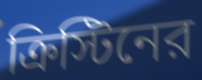
ক্রিস্টিনের